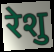
रेशु